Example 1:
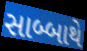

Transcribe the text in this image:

સાબ્બાથે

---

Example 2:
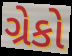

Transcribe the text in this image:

ગ્રેકો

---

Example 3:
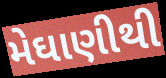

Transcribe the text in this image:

મેઘાણીથી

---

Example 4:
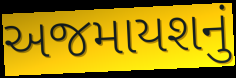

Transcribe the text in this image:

અજમાયશનું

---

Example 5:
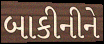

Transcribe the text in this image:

બાકીનીને